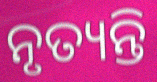
ନୃତ୍ୟନ୍ତି